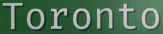
Toronto